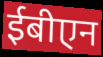
ईबीएन